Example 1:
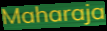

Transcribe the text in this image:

Maharaja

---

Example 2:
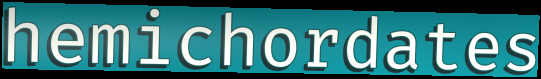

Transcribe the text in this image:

hemichordates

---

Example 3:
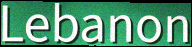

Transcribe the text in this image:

Lebanon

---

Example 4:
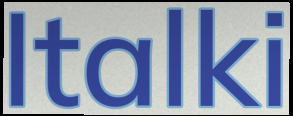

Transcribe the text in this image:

Italki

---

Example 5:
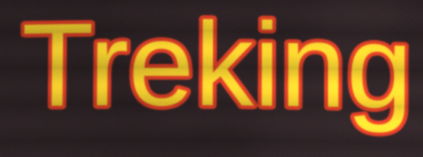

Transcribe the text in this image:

Treking